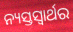
ନ୍ୟସ୍ତସ୍ଵାର୍ଥର